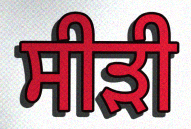
ਸੀੜੀ